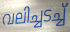
വലിച്ചടച്ച്